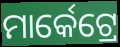
ମାର୍କେଟ୍ରେ